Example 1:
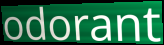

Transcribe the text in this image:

odorant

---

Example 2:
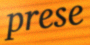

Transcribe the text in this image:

prese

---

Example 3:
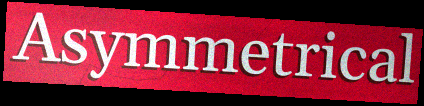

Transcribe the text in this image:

Asymmetrical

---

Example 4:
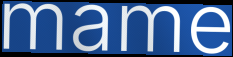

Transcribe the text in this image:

mame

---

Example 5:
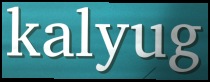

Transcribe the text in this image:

kalyug